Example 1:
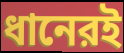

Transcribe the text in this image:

ধানেরই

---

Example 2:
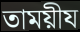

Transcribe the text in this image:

তাময়ীয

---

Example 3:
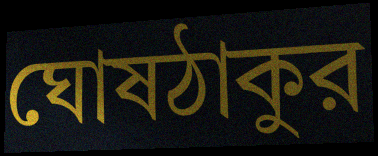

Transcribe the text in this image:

ঘোষঠাকুর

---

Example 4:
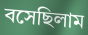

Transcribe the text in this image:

বসেছিলাম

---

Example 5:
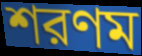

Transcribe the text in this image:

শরণম